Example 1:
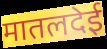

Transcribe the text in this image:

मातलदेई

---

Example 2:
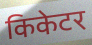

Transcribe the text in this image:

किकेटर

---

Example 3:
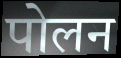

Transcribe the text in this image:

पोलन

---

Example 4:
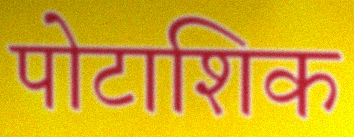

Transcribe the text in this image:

पोटाशिक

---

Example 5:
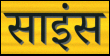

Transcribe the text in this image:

साइंस